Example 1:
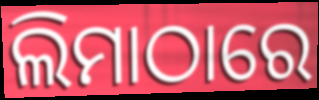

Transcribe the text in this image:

ଲିମାଠାରେ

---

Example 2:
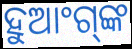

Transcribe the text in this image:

ହୁଆଂଗ୍‍ଙ୍କ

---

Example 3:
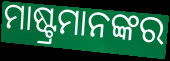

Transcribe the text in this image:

ମାଷ୍ଟ୍ରମାନଙ୍କର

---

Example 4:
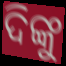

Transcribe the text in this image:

ଦିଙ୍କୁ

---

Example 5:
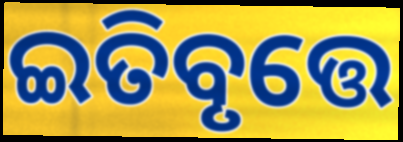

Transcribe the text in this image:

ଇତିବୃତ୍ତେ